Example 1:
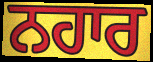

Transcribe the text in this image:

ਨਹਾਰ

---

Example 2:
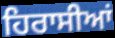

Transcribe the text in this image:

ਹਿਰਾਸੀਆਂ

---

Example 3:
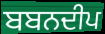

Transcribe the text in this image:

ਬਬਨਦੀਪ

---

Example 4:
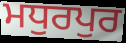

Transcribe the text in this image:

ਮਧੁਰਪੁਰ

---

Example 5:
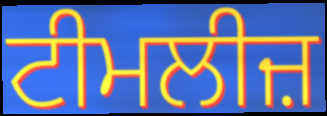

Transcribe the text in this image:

ਟੀਮਲੀਜ਼